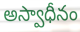
అస్వాధీనం